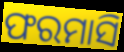
ଫରମାସି